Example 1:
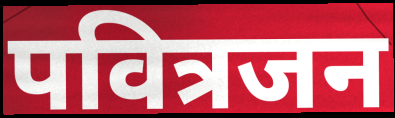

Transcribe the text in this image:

पवित्रजन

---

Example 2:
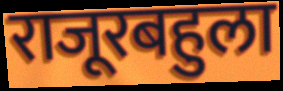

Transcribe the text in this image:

राजूरबहुला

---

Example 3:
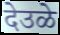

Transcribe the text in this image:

देउळे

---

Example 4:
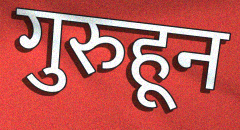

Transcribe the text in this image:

गुरुहून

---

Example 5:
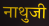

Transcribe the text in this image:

नाथुजी